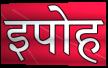
इपोह